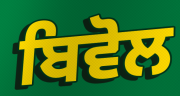
ਬਿਵੋਲ